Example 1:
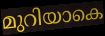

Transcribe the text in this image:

മുറിയാകെ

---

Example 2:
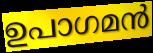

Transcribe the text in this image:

ഉപാഗമൻ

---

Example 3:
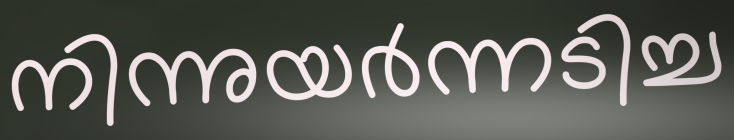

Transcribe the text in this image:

നിന്നുയർന്നടിച്ച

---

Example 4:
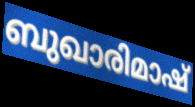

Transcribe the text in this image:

ബുഖാരിമാഷ്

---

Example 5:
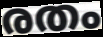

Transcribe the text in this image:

രതം